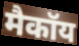
मैकॉय